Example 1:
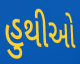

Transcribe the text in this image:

હુથીઓ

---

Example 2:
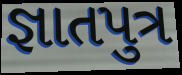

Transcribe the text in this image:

જ્ઞાતપુત્ર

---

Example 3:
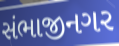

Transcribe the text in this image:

સંભાજીનગર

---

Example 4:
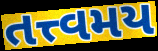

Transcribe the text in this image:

તત્ત્વમય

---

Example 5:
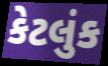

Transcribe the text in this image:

કેટલુંક